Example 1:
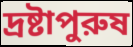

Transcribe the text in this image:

দ্রষ্টাপুরুষ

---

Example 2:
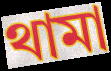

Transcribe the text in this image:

থামা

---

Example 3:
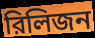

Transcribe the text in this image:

রিলিজন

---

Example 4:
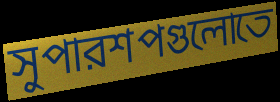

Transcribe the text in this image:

সুপারশপগুলোতে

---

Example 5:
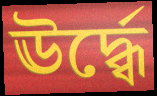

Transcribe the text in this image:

ঊর্দ্ধ্বে